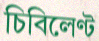
চিবিলেণ্ট